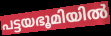
പട്ടയഭൂമിയിൽ